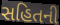
સહિતની